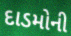
દાડમોની